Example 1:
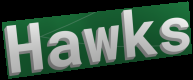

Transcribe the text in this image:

Hawks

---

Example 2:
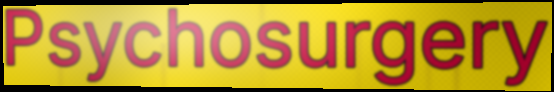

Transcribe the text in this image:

Psychosurgery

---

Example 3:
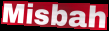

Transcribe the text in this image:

Misbah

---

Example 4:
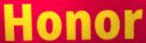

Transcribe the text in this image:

Honor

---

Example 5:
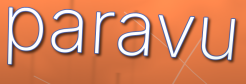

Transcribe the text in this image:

paravu